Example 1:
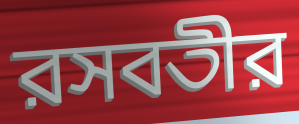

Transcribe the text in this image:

রসবতীর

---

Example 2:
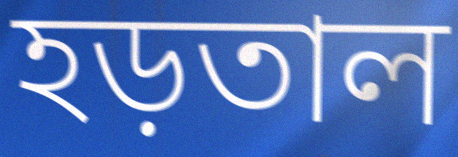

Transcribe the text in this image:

হড়তাল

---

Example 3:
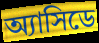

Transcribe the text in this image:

অ্যাসিডে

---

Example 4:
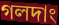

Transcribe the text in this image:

গলদাং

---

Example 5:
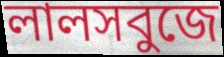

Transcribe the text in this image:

লালসবুজে